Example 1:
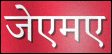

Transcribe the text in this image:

जेएमए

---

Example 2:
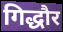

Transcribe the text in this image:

गिद्धौर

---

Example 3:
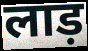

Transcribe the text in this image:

लाड़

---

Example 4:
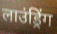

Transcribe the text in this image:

लाउंड्रिंग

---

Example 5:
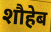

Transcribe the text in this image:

शौहेब